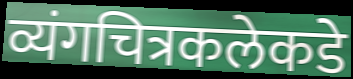
व्यंगचित्रकलेकडे